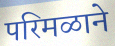
परिमळाने